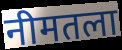
नीमतला